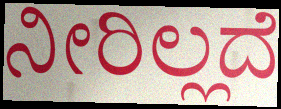
ನೀರಿಲ್ಲದೆ